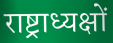
राष्ट्राध्यक्षों